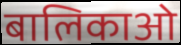
बालिकाओ